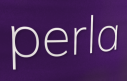
perla